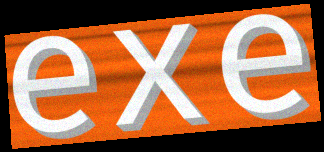
exe